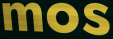
mos